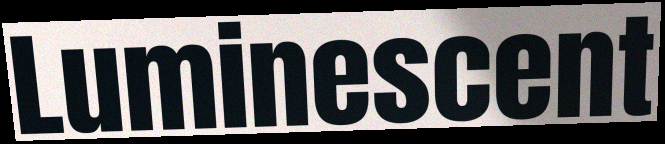
Luminescent